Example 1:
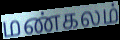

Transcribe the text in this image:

மண்கலம்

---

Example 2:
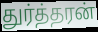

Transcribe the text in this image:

துர்த்தரன்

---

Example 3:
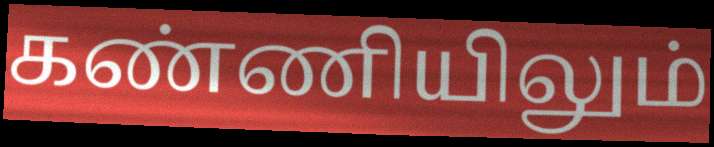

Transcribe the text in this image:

கண்ணியிலும்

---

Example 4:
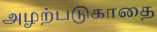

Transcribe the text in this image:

அழற்படுகாதை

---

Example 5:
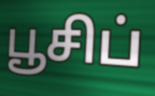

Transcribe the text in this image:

பூசிப்